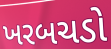
ખરબચડો